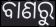
ବାଣରୁ